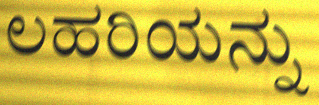
ಲಹರಿಯನ್ನು